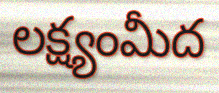
లక్ష్యంమీద